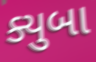
ક્યુબા